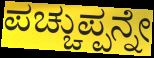
ಪಚ್ಚುಪ್ಪನ್ನೇ